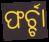
ଫର୍ଚ୍ଚା